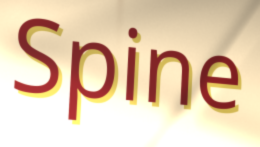
Spine